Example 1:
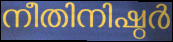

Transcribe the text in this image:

നീതിനിഷ്ഠർ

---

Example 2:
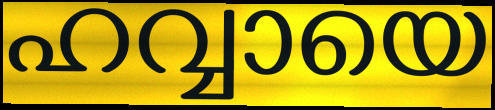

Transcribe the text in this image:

ഹവ്വായെ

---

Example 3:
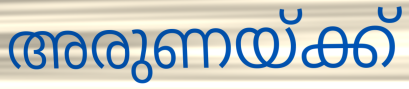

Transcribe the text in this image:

അരുണയ്ക്ക്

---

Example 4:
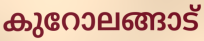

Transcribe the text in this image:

കുറോലങ്ങാട്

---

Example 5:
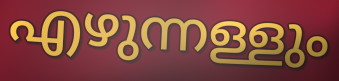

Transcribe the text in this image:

എഴുന്നള്ളും